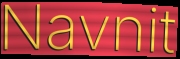
Navnit